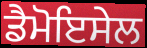
ਡੈਮੋਇਸੇਲ